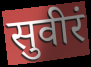
सुवीरं